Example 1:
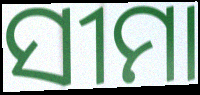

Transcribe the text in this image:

ସୀମା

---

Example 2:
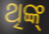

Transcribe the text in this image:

ଥିଙ୍କ୍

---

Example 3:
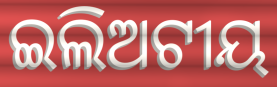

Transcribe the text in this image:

ଇଲିଅଟୀୟ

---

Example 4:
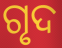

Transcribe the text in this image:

ଗୃଦ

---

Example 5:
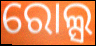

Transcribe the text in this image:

ରୋଲ୍ସ